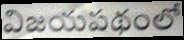
విజయపథంలో